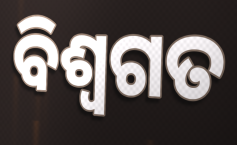
ବିଶ୍ୱଗତ